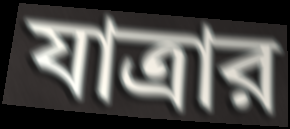
যাত্রার